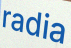
radia